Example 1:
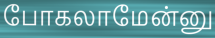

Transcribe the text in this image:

போகலாமேன்னு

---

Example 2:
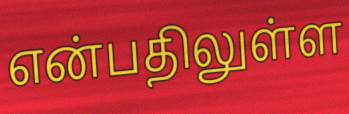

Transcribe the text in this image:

என்பதிலுள்ள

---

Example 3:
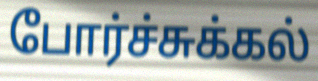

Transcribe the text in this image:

போர்ச்சுக்கல்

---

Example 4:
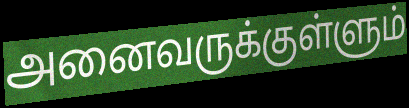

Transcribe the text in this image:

அனைவருக்குள்ளும்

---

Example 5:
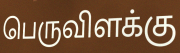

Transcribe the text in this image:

பெருவிளக்கு